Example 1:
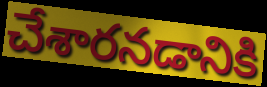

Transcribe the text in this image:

చేశారనడానికి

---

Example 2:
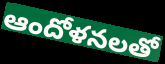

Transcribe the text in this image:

ఆందోళనలతో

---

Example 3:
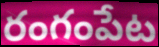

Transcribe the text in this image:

రంగంపేట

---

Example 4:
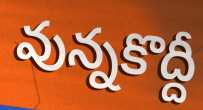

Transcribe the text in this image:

వున్నకొద్దీ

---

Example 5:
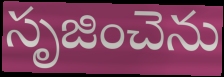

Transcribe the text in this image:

సృజించెను